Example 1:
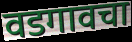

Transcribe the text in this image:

वडगावचा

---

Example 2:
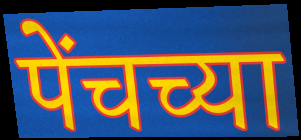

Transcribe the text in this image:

पेंचच्या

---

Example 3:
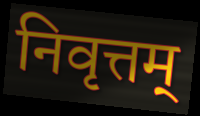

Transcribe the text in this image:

निवृत्तम्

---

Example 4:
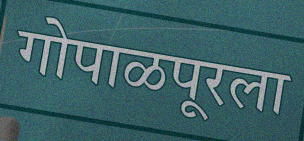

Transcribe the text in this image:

गोपाळपूरला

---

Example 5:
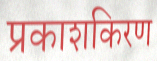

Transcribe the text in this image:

प्रकाशकिरण